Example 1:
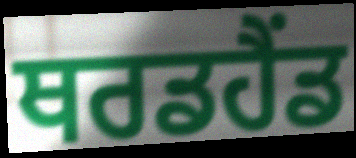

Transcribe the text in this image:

ਥਰਡਹੈਂਡ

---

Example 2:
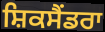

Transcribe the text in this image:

ਸ਼ਿਕਸੈਂਡਰਾ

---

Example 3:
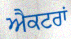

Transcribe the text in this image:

ਐਕਟਰਾਂ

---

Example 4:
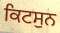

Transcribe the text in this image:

ਕਿਟਸੁਨ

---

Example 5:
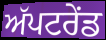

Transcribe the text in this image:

ਅੱਪਟਰੇਂਡ